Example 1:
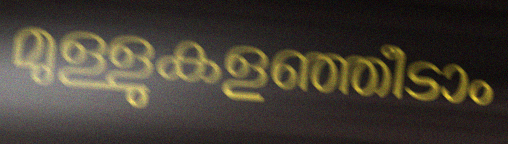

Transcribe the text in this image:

മുള്ളുകളഞ്ഞീടാം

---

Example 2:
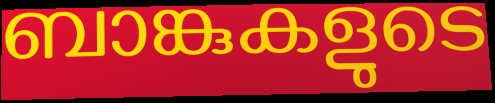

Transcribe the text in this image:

ബാങ്കുകളുടെ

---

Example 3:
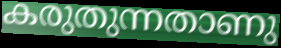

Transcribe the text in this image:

കരുതുന്നതാണു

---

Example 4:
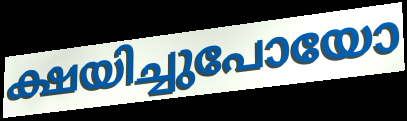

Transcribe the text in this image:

ക്ഷയിച്ചുപോയോ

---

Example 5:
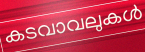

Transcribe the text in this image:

കടവാവലുകൾ